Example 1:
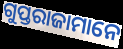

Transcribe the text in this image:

ଗୁପ୍ତରାଜାମାନେ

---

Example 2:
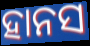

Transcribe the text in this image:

ହାନସ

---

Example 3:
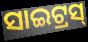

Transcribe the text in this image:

ସାଇଟ୍ରସ୍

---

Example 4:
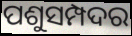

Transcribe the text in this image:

ପଶୁସମ୍ପଦର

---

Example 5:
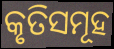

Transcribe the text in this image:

କୃତିସମୂହ